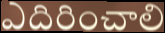
ఎదిరించాలి